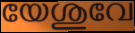
യേശുവേ